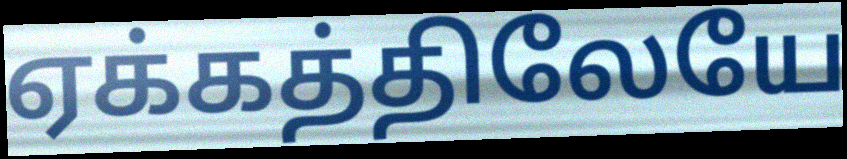
ஏக்கத்திலேயே